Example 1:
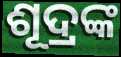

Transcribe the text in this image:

ଶୂଦ୍ରଙ୍କ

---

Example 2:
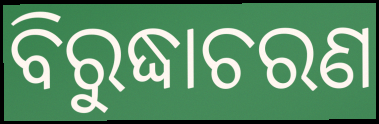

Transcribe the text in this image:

ବିରୁଦ୍ଧାଚରଣ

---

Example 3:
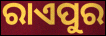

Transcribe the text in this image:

ରାଏପୁର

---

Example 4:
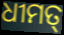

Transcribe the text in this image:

ଧୀମତ୍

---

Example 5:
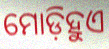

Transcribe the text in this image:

ମୋଡ଼ିହୁଏ